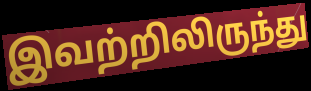
இவற்றிலிருந்து